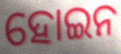
ହୋଇନ